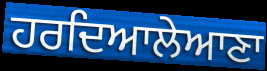
ਹਰਦਿਆਲੇਆਣਾ